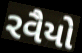
રવૈયો